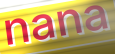
nana